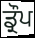
ਡ੍ਰੌਪ